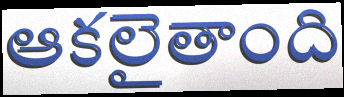
ఆకలైతాంది